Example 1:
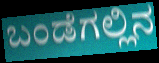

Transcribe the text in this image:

ಬಂಡೆಗಲ್ಲಿನ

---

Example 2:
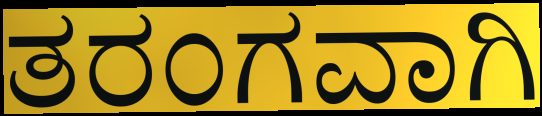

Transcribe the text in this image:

ತರಂಗವಾಗಿ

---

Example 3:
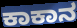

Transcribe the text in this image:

ಕಾಕಾನ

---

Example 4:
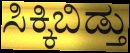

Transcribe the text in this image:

ಸಿಕ್ಕಿಬಿಡ್ತು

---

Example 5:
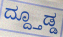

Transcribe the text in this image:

ದ್ದ್ತೂಡ್ಡ